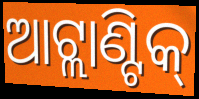
ଆଟ୍ଲାଣ୍ଟିକ୍